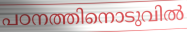
പഠനത്തിനൊടുവിൽ